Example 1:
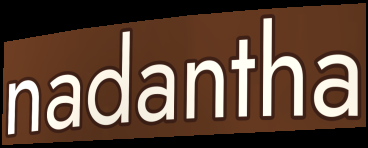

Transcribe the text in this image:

nadantha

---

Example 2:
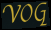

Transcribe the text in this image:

VOG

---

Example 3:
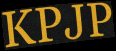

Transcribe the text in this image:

KPJP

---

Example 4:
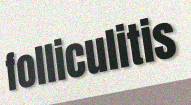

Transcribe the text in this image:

folliculitis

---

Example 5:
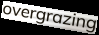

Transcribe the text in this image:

overgrazing